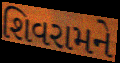
શિવરામને